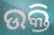
ଉକ୍ତି